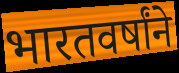
भारतवर्षांने